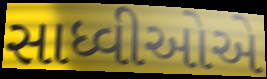
સાધ્વીઓએ